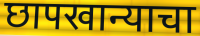
छापखान्याचा